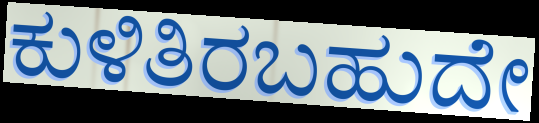
ಕುಳಿತಿರಬಹುದೇ